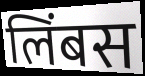
लिंबस